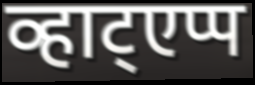
व्हाट्एप्प